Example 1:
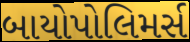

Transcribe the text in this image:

બાયોપોલિમર્સ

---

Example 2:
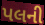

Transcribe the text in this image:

પલની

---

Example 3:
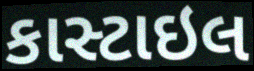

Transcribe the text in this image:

કાસ્ટાઇલ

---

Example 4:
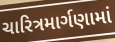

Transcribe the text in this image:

ચારિત્રમાર્ગણામાં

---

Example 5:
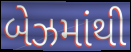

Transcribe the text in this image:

બેઝમાંથી